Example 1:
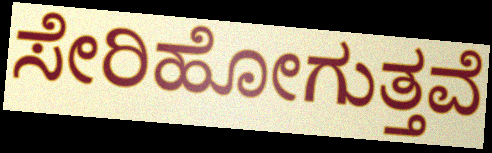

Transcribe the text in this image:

ಸೇರಿಹೋಗುತ್ತವೆ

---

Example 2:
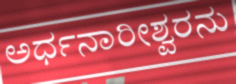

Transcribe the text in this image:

ಅರ್ಧನಾರೀಶ್ವರನು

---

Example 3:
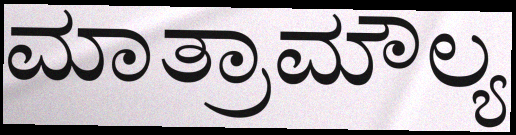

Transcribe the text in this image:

ಮಾತ್ರಾಮೌಲ್ಯ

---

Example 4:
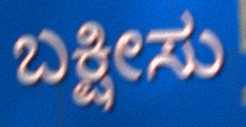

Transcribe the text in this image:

ಬಕ್ಷೀಸು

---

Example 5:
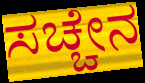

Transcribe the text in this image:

ಸಚ್ಚೇನ